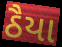
ઠૈયા